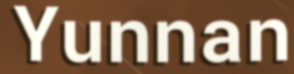
Yunnan